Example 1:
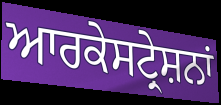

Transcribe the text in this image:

ਆਰਕੇਸਟ੍ਰੇਸ਼ਨਾਂ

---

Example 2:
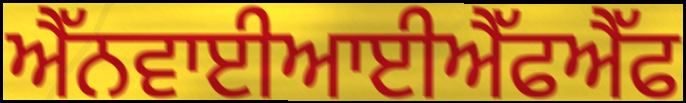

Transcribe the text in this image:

ਐੱਨਵਾਈਆਈਐੱਫਐੱਫ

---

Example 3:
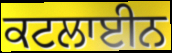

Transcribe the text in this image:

ਕਟਲਾਈਨ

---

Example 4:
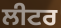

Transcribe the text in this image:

ਲੀਟਰ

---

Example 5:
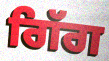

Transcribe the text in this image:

ਗਿੱਗ